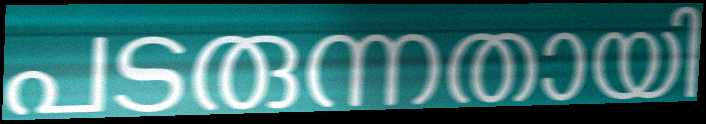
പടരുന്നതായി